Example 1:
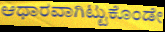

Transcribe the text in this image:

ಆಧಾರವಾಗಿಟ್ಟುಕೊಂಡೇ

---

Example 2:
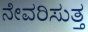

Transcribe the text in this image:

ನೇವರಿಸುತ್ತ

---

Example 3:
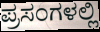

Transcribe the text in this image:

ಪ್ರಸಂಗಳಲ್ಲಿ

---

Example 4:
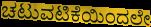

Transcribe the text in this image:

ಚಟುವಟಿಕೆಯಿಂದಲೇ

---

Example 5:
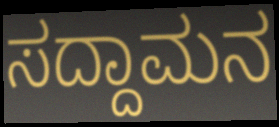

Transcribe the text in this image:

ಸದ್ದಾಮನ